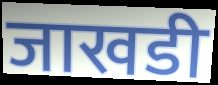
जाखडी